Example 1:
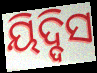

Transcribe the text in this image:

ୟିଦ୍ଦିସ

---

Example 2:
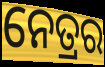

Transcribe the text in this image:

ନେତ୍ରର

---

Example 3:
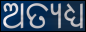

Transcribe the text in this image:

ଅତ୍ୟଧ୍ୟ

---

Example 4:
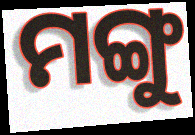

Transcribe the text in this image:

ମଙ୍ଗୁ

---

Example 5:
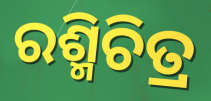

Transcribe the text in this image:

ରଶ୍ମିଚିତ୍ର